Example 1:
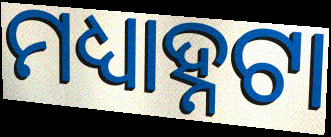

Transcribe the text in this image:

ମଧ୍ୟାହ୍ନଟା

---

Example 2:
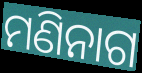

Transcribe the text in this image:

ମଣିନାଗ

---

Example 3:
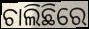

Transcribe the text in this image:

ଚାଲିଛିରେ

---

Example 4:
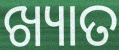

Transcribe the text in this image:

ଖ୍ୟାତ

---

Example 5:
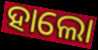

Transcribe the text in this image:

ହାଲୋ